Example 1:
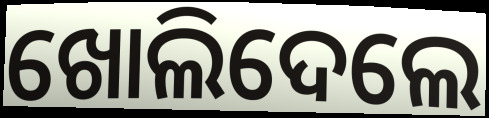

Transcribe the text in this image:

ଖୋଲିଦେଲେ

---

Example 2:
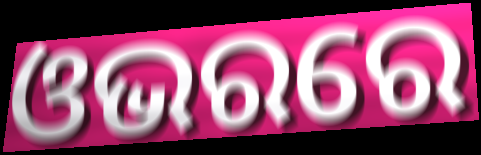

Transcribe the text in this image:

ଓଭରରେ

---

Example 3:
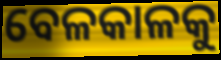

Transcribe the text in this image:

ବେଳକାଳକୁ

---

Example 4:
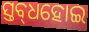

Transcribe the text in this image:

ସ୍ତବ୍‌ଧହୋଇ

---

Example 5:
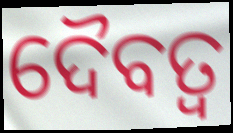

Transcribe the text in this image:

ଦୈବତ୍ଵ